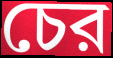
চের